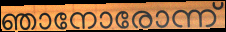
ഞാനോരോന്ന്